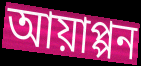
আয়াপ্পন